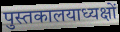
पुस्तकालयाध्यक्षों